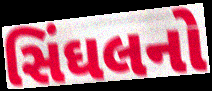
સિંઘલનો